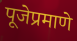
पूजेप्रमाणे